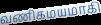
வணிகமயமாகி